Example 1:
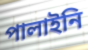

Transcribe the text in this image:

পালাইনি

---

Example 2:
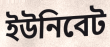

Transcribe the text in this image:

ইউনিবেট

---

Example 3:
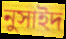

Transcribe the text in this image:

নুসাইদ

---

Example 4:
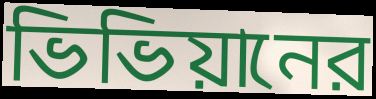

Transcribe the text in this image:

ভিভিয়ানের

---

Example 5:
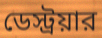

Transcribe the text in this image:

ডেস্ট্রয়ার